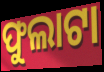
ଫୁଲାଟା